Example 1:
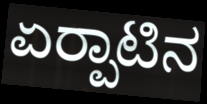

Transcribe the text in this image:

ಏರ‍್ಪಾಟಿನ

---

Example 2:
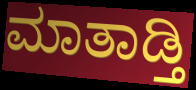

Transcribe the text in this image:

ಮಾತಾಡ್ತಿ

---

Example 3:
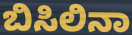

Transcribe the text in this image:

ಬಿಸಿಲಿನಾ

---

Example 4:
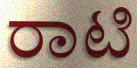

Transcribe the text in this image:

ರಾಟಿ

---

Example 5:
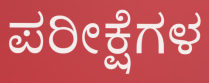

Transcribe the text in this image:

ಪರೀಕ್ಷೆಗಳ